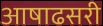
आषाढसरी